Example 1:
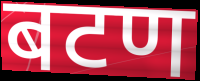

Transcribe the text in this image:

बटण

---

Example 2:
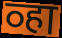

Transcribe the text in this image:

व्हा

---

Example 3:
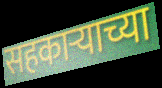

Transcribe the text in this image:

सहकार्‍याच्या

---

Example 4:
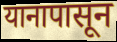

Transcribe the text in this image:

यानापासून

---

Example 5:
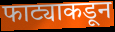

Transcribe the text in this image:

फाट्याकडून